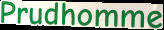
Prudhomme